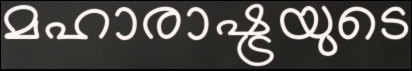
മഹാരാഷ്ട്രയുടെ